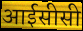
आईसीसी